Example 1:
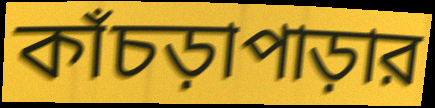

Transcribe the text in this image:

কাঁচড়াপাড়ার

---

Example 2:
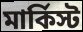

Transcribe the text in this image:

মার্কিস্ট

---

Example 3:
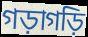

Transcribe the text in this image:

গড়াগড়ি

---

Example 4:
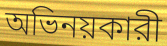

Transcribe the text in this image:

অভিনয়কারী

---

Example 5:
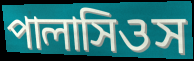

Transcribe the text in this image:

পালাসিওস